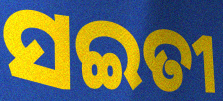
ସଇତୀ